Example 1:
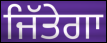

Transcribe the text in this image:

ਜਿੱਤੇਗਾ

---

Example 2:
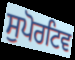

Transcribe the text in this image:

ਸੁਪੋਰਟਿਵ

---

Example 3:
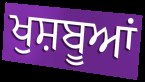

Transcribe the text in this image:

ਖੁਸ਼ਬੂਆਂ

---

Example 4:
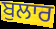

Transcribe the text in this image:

ਬੁਲਾਰ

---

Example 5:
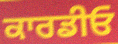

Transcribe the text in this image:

ਕਾਰਡੀਓ